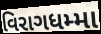
વિરાગધમ્મા